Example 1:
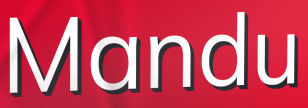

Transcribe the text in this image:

Mandu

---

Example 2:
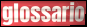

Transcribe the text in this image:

glossario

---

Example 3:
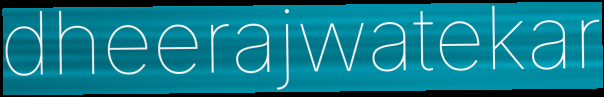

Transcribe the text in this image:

dheerajwatekar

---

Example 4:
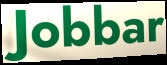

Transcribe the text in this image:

Jobbar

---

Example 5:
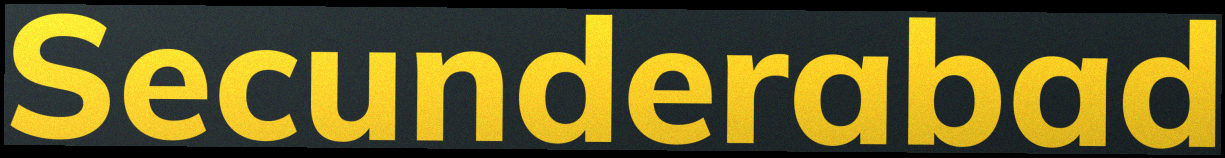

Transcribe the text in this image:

Secunderabad